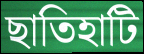
ছাতিহাটি